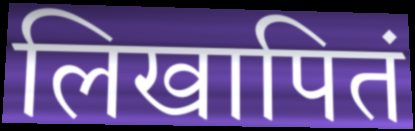
लिखापितं